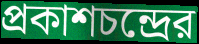
প্রকাশচন্দ্রের